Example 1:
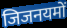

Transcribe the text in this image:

जिजनयमों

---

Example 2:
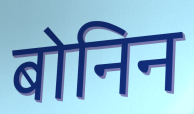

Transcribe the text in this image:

बोनिन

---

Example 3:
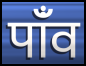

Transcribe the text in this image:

पांँव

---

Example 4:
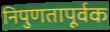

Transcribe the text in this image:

निपुणतापूर्वक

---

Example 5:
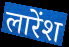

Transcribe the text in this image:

लारेंश